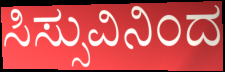
ಸಿಸ್ಸುವಿನಿಂದ